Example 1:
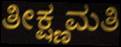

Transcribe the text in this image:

ತೀಕ್ಷ್ಣಮತಿ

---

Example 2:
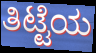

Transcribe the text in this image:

ತಿಟ್ಟೆಯ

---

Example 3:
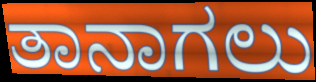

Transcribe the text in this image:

ತಾನಾಗಲು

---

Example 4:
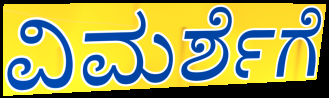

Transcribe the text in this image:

ವಿಮರ್ಶೆಗೆ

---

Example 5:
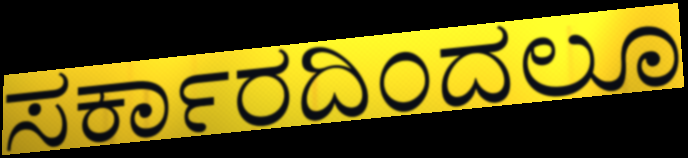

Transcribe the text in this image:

ಸರ್ಕಾರದಿಂದಲೂ